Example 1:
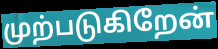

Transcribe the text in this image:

முற்படுகிறேன்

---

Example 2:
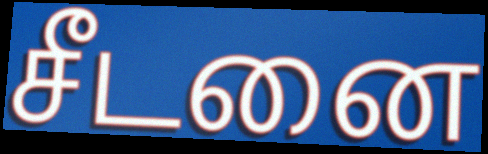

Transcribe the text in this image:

சீடனை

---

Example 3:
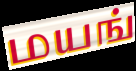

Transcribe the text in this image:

மயங்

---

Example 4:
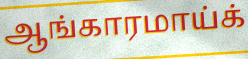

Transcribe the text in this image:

ஆங்காரமாய்க்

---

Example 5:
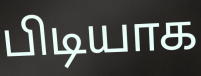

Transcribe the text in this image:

பிடியாக